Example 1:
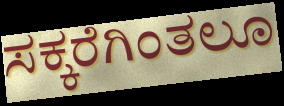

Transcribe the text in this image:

ಸಕ್ಕರೆಗಿಂತಲೂ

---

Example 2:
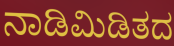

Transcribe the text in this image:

ನಾಡಿಮಿಡಿತದ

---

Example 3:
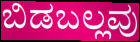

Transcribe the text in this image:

ಬಿಡಬಲ್ಲವು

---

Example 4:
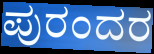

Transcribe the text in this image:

ಪುರಂದರ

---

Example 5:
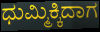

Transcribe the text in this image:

ಧುಮ್ಮಿಕ್ಕಿದಾಗ